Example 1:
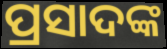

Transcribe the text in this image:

ପ୍ରସାଦଙ୍କ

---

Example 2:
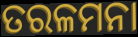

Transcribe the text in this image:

ତରଳମନା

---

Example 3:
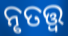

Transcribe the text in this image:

ନୃତତ୍ତ୍ୱ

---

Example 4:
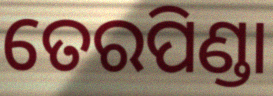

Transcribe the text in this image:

ତେରପିଣ୍ଡା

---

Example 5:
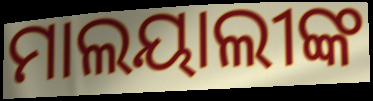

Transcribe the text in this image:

ମାଲୟାଲୀଙ୍କ